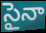
సైనా